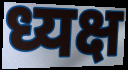
ध्यक्ष